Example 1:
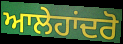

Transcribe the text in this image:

ਆਲੇਹਾਂਦਰੋ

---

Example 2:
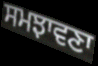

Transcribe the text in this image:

ਸਮਝਾਵਣਾ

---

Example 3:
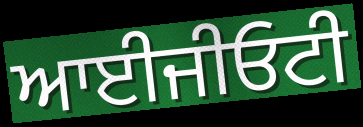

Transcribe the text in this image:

ਆਈਜੀਓਟੀ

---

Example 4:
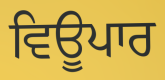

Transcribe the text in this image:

ਵਿਊਪਾਰ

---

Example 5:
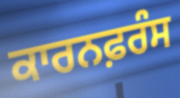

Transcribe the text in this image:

ਕਾਰਨਫ਼ਰੰਸ